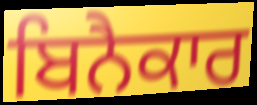
ਬਿਨੈਕਾਰ